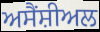
ਅਸੈਂਸ਼ੀਅਲ